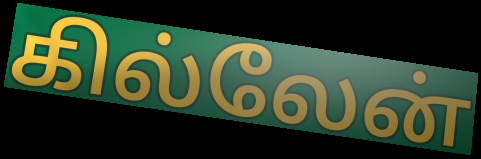
கில்லேன்